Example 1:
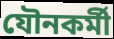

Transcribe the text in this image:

যৌনকর্মী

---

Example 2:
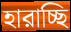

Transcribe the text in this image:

হারাচ্ছি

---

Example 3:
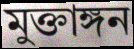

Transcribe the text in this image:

মুক্তাঙ্গন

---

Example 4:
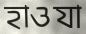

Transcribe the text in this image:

হাওযা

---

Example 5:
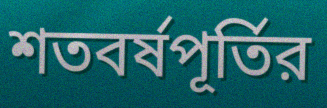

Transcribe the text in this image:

শতবর্ষপূর্তির